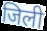
जिली